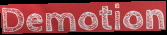
Demotion